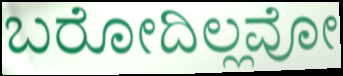
ಬರೋದಿಲ್ಲವೋ